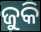
ଜୁକି